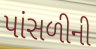
પાંસળીની